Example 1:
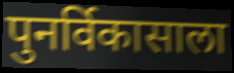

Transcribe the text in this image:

पुनर्विकासाला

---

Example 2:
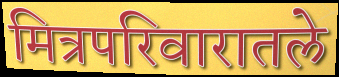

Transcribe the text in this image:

मित्रपरिवारातले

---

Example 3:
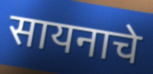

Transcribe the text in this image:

सायनाचे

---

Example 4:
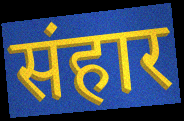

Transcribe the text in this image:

संहार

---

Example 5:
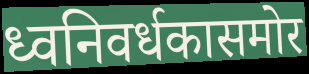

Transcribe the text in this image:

ध्वनिवर्धकासमोर